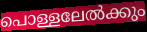
പൊള്ളലേൽക്കും